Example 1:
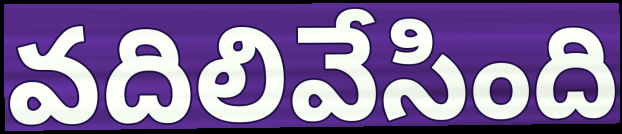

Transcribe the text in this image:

వదిలివేసింది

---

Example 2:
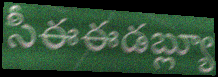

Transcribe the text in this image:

సీఈఈడబ్ల్యూ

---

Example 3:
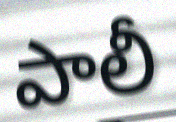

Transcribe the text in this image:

పాలీ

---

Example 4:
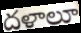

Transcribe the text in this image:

దళాలూ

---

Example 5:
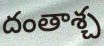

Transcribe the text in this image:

దంతాశ్చ